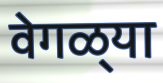
वेगळ्‌या